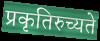
प्रकृतिरुच्यते